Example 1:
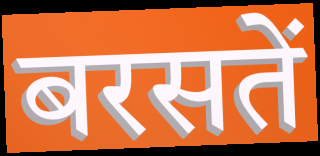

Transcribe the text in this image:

बरसतें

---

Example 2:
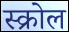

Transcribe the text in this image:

स्क्रोल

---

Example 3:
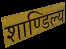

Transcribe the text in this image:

शाण्डिल्य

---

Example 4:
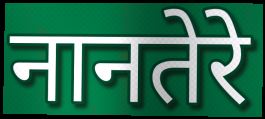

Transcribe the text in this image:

नानतेरे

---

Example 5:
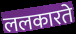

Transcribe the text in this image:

ललकारते